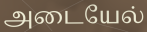
அடையேல்